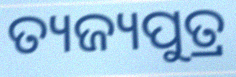
ତ୍ୟଜ୍ୟପୁତ୍ର